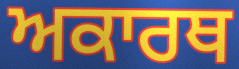
ਅਕਾਰਥ